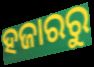
ହଜାରରୁ